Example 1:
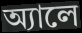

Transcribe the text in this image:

অ্যালে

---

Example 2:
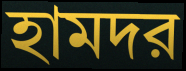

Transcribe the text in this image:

হামদর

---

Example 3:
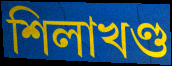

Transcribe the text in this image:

শিলাখণ্ড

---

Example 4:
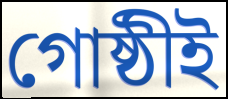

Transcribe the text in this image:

গোষ্ঠীই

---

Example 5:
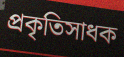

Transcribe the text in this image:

প্রকৃতিসাধক